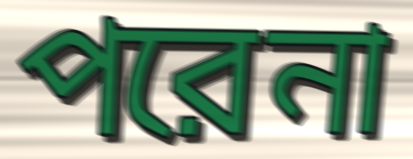
পরেনা